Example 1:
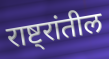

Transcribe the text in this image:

राष्ट्रांतील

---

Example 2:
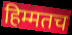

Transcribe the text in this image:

हिम्मतच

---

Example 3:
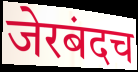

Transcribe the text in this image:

जेरबंदच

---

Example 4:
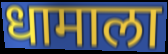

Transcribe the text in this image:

धामाला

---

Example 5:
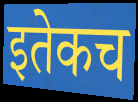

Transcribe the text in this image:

इतेकच